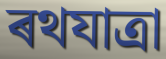
ৰথযাত্ৰা